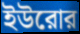
ইউরোর